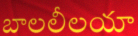
బాలలీలయా